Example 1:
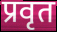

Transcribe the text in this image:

प्रवृत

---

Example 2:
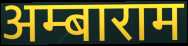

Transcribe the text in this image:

अम्बाराम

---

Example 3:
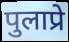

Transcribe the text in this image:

पुलाप्रे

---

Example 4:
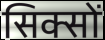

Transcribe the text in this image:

सिक्सों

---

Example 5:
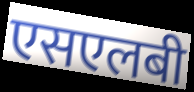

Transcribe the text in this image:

एसएलबी